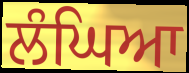
ਲੰਘਿਆ